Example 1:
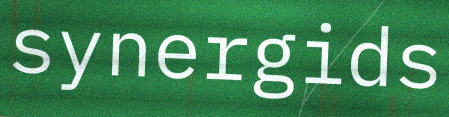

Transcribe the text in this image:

synergids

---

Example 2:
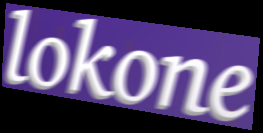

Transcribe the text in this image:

lokone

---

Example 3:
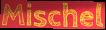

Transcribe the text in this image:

Mischel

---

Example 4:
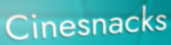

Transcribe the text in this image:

Cinesnacks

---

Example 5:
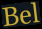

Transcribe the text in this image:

Bel